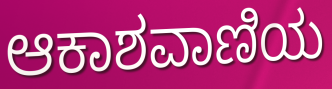
ಆಕಾಶವಾಣಿಯ